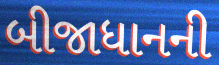
બીજાધાનની